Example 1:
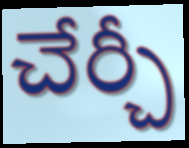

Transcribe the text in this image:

చేర్చీ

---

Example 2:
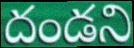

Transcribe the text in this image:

దండని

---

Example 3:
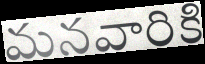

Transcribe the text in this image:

మనవారికి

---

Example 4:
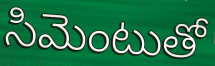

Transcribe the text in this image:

సిమెంటుతో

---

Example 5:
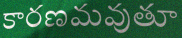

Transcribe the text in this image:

కారణమవుతూ